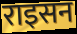
राइसन